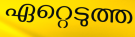
ഏറ്റെടുത്ത